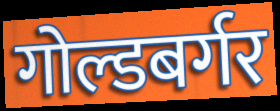
गोल्डबर्गर